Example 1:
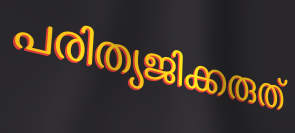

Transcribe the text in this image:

പരിത്യജിക്കരുത്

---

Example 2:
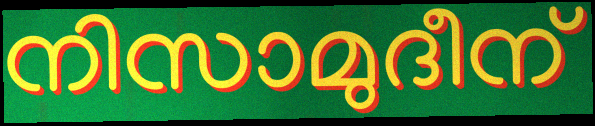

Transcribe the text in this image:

നിസാമുദീന്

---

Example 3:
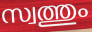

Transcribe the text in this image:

സ്വത്തും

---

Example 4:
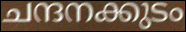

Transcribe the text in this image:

ചന്ദനക്കുടം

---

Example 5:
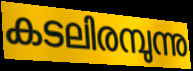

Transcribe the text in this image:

കടലിരമ്പുന്നു